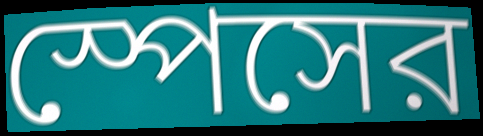
স্পেসের